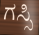
ಗಸ್ಸಿ